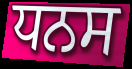
ਧਨਸ